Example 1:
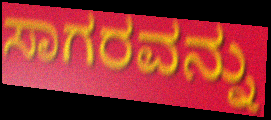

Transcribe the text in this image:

ಸಾಗರವನ್ನು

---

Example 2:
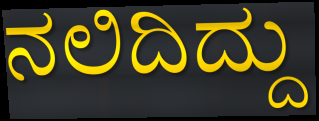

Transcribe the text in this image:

ನಲಿದಿದ್ದು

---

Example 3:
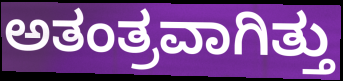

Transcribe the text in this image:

ಅತಂತ್ರವಾಗಿತ್ತು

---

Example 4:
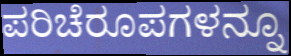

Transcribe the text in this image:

ಪರಿಚೆರೂಪಗಳನ್ನೂ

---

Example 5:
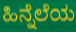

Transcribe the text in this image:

ಹಿನ್ನೆಲೆಯ